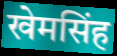
खेमसिंह